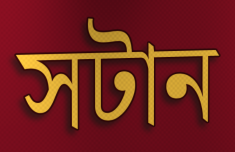
সটান